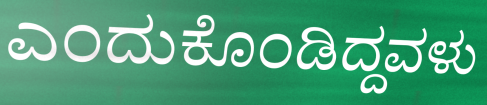
ಎಂದುಕೊಂಡಿದ್ದವಳು